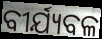
ବୀର୍ଯ୍ୟବଳ